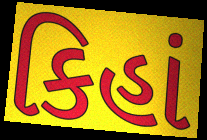
કિહાં